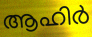
ആഹിർ